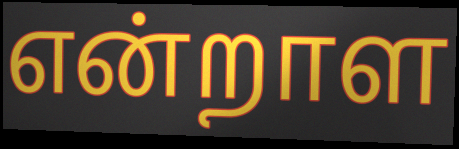
என்றாள